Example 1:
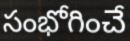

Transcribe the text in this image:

సంభోగించే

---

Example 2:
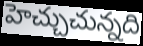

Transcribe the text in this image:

హెచ్చుచున్నది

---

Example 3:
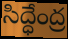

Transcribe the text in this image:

సిద్ధేంద్ర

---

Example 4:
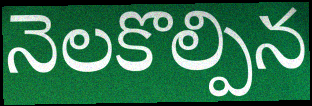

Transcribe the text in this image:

నెలకొల్పిన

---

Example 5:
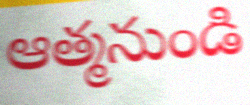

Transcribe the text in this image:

ఆత్మనుండి